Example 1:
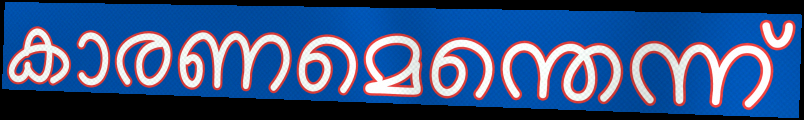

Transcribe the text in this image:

കാരണമെന്തെന്ന്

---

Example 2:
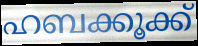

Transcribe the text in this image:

ഹബക്കൂക്ക്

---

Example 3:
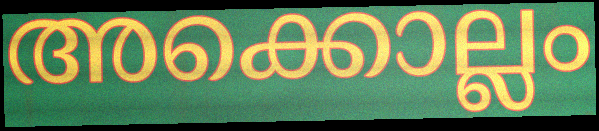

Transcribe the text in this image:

അക്കൊല്ലം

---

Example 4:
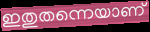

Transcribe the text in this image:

ഇതുതന്നെയാണ്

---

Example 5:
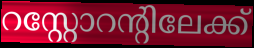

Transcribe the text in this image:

റസ്റ്റോറന്റിലേക്ക്